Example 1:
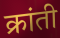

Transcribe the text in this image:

क्रांती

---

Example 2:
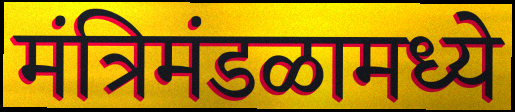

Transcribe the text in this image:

मंत्रिमंडळामध्ये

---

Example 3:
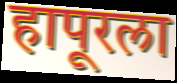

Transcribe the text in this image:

हापूरला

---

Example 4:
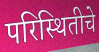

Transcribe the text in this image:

परिस्थितीचे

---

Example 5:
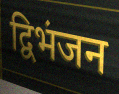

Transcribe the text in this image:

द्विभंजन